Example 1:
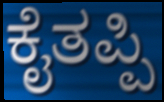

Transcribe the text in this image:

ಕೈತಪ್ಪಿ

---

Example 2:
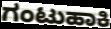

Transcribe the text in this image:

ಗಂಟುಹಾಕಿ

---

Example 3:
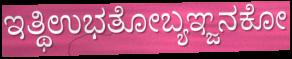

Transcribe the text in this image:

ಇತ್ಥಿಉಭತೋಬ್ಯಞ್ಜನಕೋ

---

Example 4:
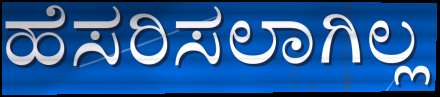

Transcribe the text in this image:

ಹೆಸರಿಸಲಾಗಿಲ್ಲ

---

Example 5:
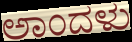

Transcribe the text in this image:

ಅಾಂದಳು